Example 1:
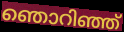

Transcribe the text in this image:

ഞൊറിഞ്ഞ്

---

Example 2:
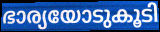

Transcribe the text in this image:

ഭാര്യയോടുകൂടി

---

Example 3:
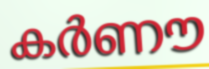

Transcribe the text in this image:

കർണൗ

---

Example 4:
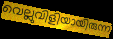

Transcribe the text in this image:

വെല്ലുവിളിയായിരുന്ന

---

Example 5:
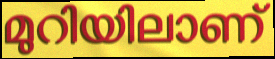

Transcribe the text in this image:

മുറിയിലാണ്